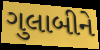
ગુલાબીને